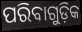
ପରିବାଗୁଡ଼ିକ